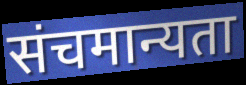
संचमान्यता